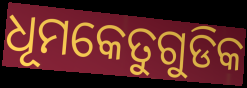
ଧୂମକେତୁଗୁଡିକ